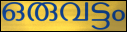
ഒരുവട്ടം